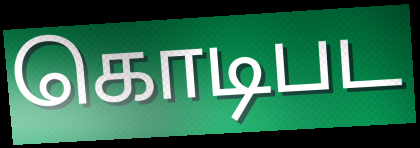
கொடிபட